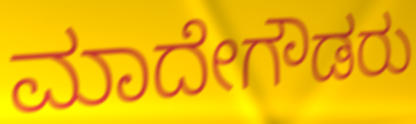
ಮಾದೇಗೌಡರು